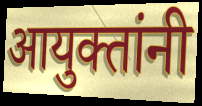
आयुक्तांनी